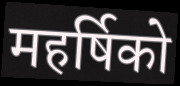
महर्षिको